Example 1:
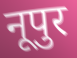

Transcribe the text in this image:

नूपुर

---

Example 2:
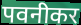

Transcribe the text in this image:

पवनीकर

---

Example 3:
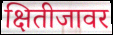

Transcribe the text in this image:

क्षितीजावर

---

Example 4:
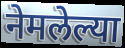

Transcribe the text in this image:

नेमलेल्या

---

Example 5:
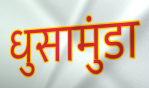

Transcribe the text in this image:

धुसामुंडा